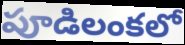
పూడిలంకలో